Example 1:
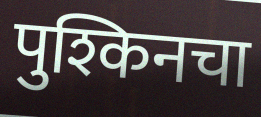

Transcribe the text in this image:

पुश्किनचा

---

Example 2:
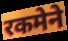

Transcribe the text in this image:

रकमेने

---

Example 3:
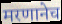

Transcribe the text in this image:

मरणानेच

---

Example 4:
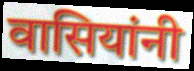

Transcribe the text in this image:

वासियांनी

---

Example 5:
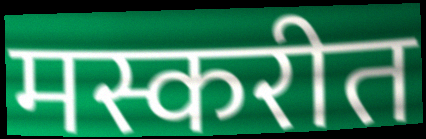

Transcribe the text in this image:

मस्करीत